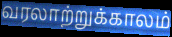
வரலாற்றுக்காலம்